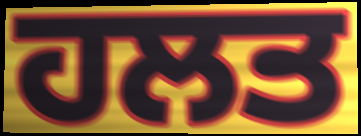
ਹਲਤ